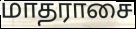
மாதராசை